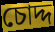
চোদ্দ